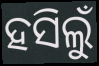
ହସିଲୁଁ